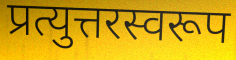
प्रत्युत्तरस्वरूप